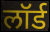
लॉर्ड